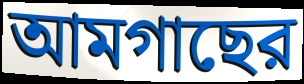
আমগাছের